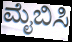
ಮೈಬಿಸಿ